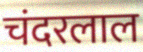
चंदरलाल